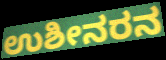
ಉಶೀನರನ